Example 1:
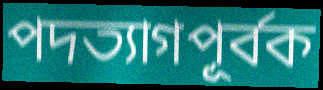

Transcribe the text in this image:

পদত্যাগপূর্বক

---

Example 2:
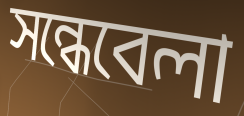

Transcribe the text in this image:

সন্ধেবেলা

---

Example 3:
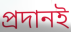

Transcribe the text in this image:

প্রদানই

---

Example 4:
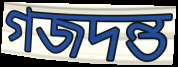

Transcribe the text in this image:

গজদন্ত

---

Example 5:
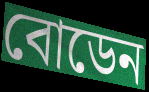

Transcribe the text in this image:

বোডেন